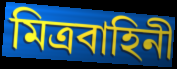
মিত্রবাহিনী